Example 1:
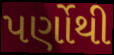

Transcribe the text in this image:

પર્ણોથી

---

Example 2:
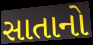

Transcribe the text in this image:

સાતાનો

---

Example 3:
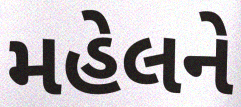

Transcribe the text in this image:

મહેલને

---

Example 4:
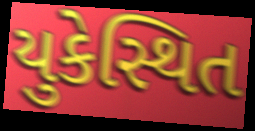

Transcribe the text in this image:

યુકેસ્થિત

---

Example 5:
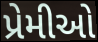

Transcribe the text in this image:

પ્રેમીઓ